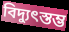
বিদ্যুৎস্তম্ভ